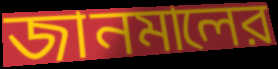
জানমালের